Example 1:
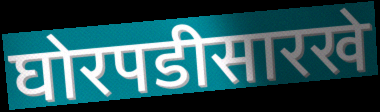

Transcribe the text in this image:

घोरपडीसारखे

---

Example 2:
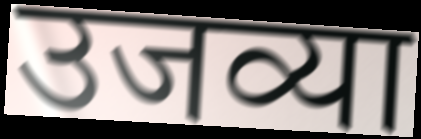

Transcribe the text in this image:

उजव्या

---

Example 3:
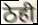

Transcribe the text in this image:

ठेही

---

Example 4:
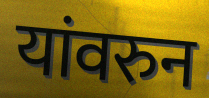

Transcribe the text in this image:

यांवरुन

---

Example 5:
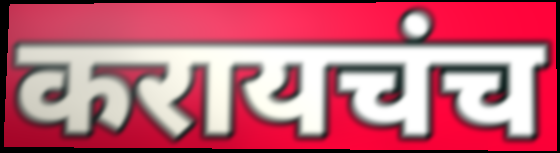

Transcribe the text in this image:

करायचंच